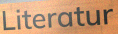
Literatur